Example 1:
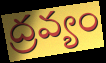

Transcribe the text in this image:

ద్రవ్యం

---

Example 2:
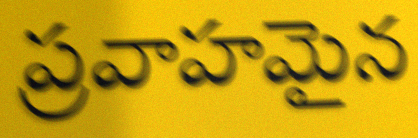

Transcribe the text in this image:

ప్రవాహమైన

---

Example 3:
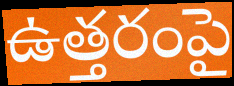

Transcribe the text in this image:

ఉత్తరంపై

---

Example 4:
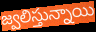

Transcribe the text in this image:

జ్వలిస్తున్నాయి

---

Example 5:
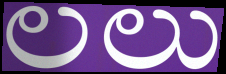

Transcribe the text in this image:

లలు